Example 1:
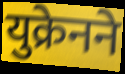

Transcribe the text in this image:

युक्रेनने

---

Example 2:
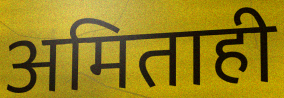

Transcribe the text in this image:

अमिताही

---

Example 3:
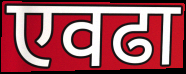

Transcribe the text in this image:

एवढा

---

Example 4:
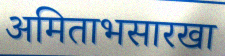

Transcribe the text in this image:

अमिताभसारखा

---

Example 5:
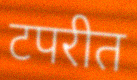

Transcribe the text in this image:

टपरीत